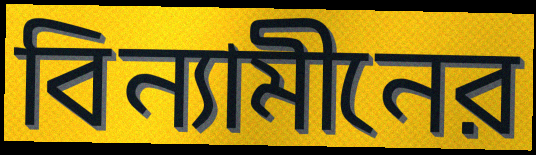
বিন্যামীনের